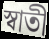
স্বাতী